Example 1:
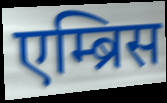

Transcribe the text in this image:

एम्ब्रिस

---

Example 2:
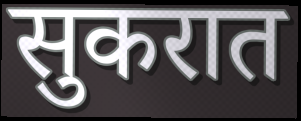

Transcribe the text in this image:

सुकरात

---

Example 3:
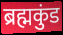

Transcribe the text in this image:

ब्रह्मकुंड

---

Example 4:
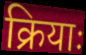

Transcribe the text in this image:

क्रियाः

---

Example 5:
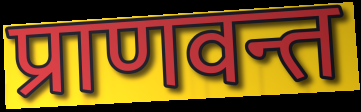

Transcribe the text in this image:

प्राणवन्त